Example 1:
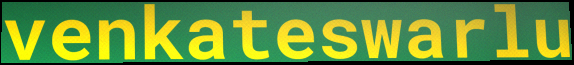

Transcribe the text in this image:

venkateswarlu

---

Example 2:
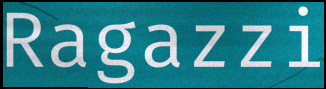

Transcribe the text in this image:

Ragazzi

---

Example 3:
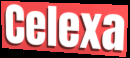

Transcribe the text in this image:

Celexa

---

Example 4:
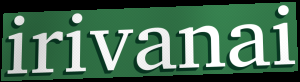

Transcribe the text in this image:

irivanai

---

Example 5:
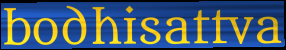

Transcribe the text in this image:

bodhisattva